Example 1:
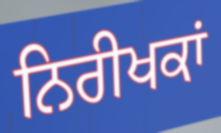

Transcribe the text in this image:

ਨਿਰੀਖਕਾਂ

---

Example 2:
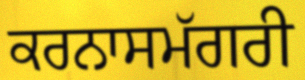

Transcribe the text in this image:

ਕਰਨਾਸਮੱਗਰੀ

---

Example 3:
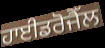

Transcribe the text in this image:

ਹਾਈਡਰੋਜੈੱਲ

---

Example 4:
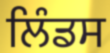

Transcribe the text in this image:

ਲਿੰਡਸ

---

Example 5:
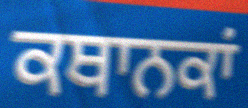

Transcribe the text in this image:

ਕਥਾਨਕਾਂ